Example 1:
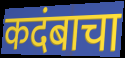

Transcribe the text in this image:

कदंबाचा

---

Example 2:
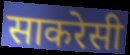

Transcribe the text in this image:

साकरेसी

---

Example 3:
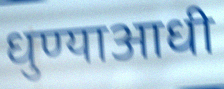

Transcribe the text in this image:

धुण्याआधी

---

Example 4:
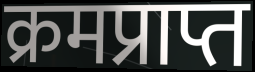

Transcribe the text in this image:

क्रमप्राप्त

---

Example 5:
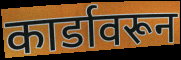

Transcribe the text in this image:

कार्डावरून